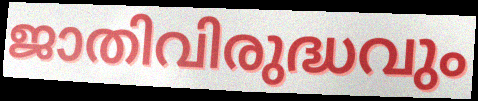
ജാതിവിരുദ്ധവും